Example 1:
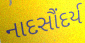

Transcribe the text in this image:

નાદસૌંદર્ય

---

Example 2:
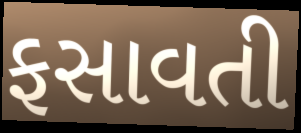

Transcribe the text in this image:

ફસાવતી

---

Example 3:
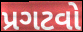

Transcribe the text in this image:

પ્રગટવો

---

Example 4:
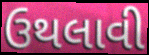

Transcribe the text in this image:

ઉથલાવી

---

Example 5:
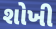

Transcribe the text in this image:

શોખી